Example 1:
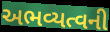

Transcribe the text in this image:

અભવ્યત્વની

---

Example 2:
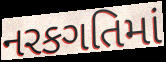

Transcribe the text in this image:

નરકગતિમાં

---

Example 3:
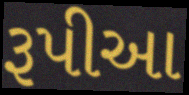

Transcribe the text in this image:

રૂપીઆ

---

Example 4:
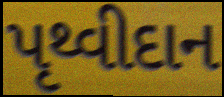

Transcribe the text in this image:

પૃથ્વીદાન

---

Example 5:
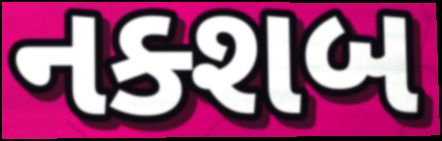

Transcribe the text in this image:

નક્શબ